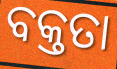
ବକ୍ତତା